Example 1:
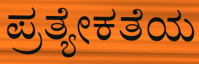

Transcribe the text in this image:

ಪ್ರತ್ಯೇಕತೆಯ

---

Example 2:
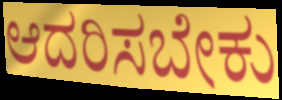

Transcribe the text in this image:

ಆದರಿಸಬೇಕು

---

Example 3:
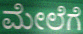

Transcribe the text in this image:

ಮೇಲೆಗೆ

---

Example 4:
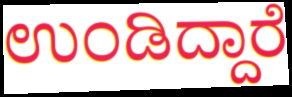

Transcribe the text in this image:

ಉಂಡಿದ್ದಾರೆ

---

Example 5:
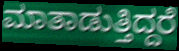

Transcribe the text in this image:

ಮಾತಾಡುತ್ತಿದ್ದರೆ